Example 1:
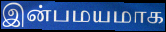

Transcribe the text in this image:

இன்பமயமாக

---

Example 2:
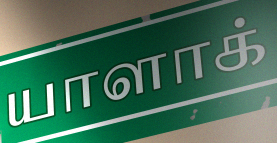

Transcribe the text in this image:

யாளாக்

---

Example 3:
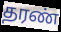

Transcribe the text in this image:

தரண்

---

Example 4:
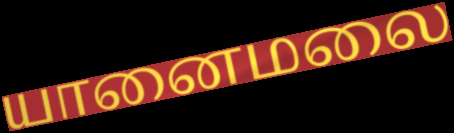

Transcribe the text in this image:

யானைமலை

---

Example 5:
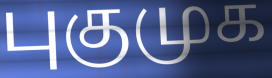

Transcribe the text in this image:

புகுமுக